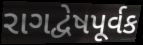
રાગદ્વેષપૂર્વક